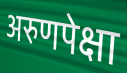
अरुणपेक्षा